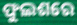
ଫୁଲଶରେ